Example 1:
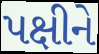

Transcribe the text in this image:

પક્ષીને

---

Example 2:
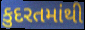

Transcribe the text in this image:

કુદરતમાંથી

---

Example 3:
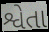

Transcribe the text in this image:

શ્વેતા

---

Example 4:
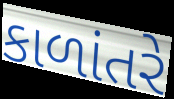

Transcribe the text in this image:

કાળાંતરે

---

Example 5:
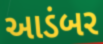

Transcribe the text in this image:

આડંબર